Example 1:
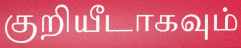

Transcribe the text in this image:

குறியீடாகவும்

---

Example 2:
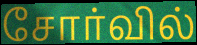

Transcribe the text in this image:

சோர்வில்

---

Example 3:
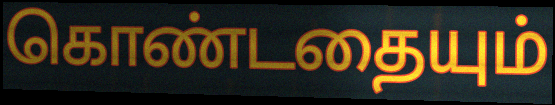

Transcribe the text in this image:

கொண்டதையும்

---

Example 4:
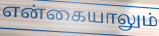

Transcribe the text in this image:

என்கையாலும்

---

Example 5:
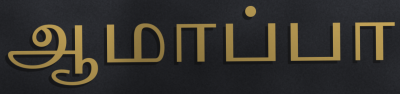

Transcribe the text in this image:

ஆமாப்பா